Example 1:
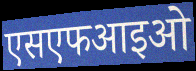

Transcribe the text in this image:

एसएफआइओ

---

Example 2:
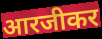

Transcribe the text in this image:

आरजीकर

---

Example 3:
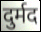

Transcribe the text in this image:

दुर्मद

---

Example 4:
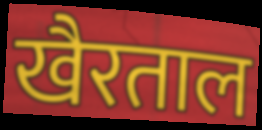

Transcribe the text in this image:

खैरताल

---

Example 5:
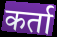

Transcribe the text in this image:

कर्ता